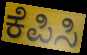
ಕೆಪಿಸಿ